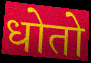
धोतो